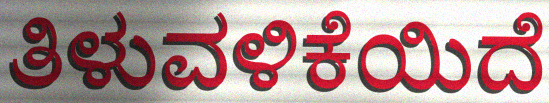
ತಿಳುವಳಿಕೆಯಿದೆ